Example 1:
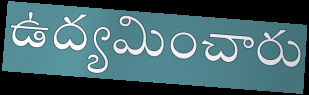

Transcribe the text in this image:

ఉద్యమించారు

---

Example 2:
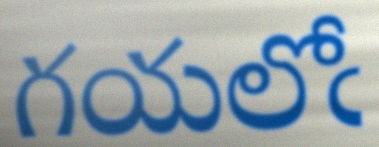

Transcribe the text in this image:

గయలోఁ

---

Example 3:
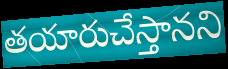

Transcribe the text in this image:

తయారుచేస్తానని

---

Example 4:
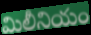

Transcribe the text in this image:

మిలీనియం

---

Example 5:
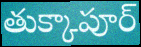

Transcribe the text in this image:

తుక్కాపూర్